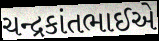
ચન્દ્રકાંતભાઈએ